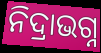
ନିଦ୍ରାଭଗ୍ନ